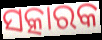
ସତ୍କାରକ